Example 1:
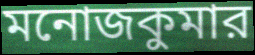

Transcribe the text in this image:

মনোজকুমার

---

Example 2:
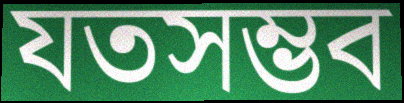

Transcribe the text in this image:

যতসম্ভব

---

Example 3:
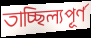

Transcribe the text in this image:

তাচ্ছিল্যপূর্ণ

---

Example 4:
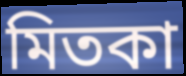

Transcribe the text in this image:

মিতকা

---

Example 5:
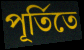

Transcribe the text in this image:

পূর্তিতে